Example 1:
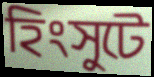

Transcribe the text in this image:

হিংসুটে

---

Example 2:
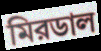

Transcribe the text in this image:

মিরডাল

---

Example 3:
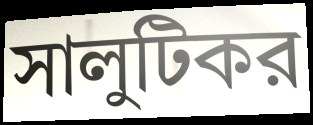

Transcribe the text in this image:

সালুটিকর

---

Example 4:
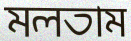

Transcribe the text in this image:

মলতাম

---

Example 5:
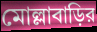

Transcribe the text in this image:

মোল্লাবাড়ির